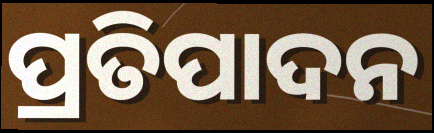
ପ୍ରତିପାଦନ